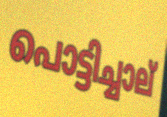
പൊട്ടിച്ചാല്